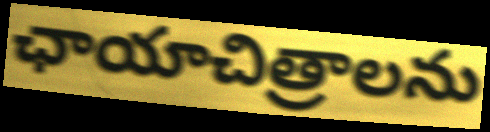
ఛాయాచిత్రాలను